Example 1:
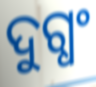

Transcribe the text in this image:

ଦୁଗ୍ଧଂ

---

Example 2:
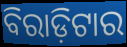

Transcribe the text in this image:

ବିରାଡ଼ିଟାର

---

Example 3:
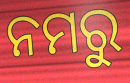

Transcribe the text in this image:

ନମରୁ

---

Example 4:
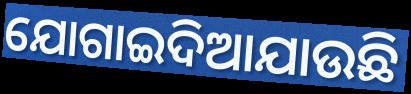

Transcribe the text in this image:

ଯୋଗାଇଦିଆଯାଉଛି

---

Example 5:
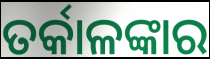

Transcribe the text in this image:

ତର୍କାଳଙ୍କାର